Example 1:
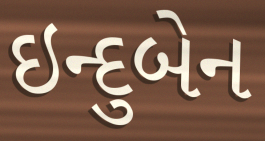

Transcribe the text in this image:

ઇન્દુબેન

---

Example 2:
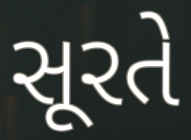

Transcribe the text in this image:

સૂરતે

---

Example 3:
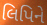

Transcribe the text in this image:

લિપિને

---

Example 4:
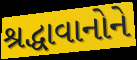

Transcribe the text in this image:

શ્રદ્ધાવાનોને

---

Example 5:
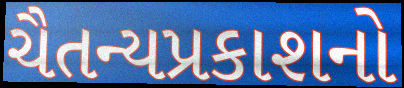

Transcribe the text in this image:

ચૈતન્યપ્રકાશનો